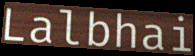
Lalbhai